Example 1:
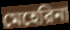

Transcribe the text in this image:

মেহেরিনা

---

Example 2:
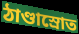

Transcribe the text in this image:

ঠাণ্ডাস্রোত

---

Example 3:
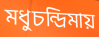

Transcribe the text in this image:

মধুচন্দ্রিমায়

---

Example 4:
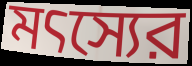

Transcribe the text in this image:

মৎস্যের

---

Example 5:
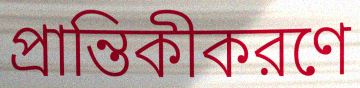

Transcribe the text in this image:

প্রান্তিকীকরণে